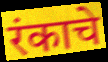
रंकाचे